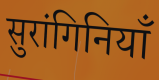
सुरांगिनियाँ